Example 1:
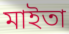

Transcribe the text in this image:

মাইতা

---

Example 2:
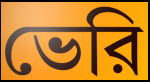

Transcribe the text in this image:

ভেরি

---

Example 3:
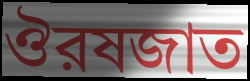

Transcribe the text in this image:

ঔরষজাত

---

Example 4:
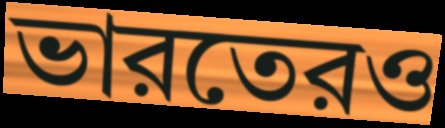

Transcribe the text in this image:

ভারতেরও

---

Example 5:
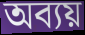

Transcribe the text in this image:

অব্যয়